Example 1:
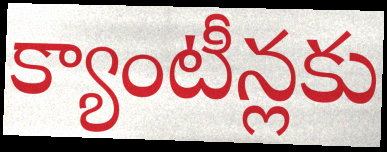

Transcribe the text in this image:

క్యాంటీన్లకు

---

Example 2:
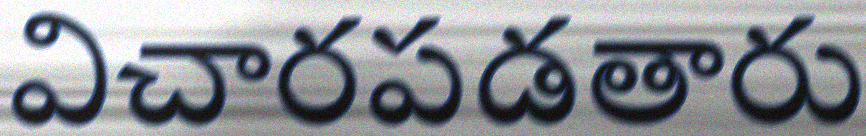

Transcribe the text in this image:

విచారపడతారు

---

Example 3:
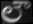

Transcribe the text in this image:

లౌ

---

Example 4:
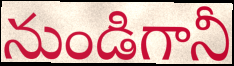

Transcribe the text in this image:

నుండిగానీ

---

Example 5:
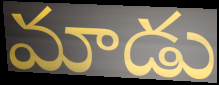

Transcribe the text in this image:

మాడు